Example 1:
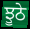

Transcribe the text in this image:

ਝੂਠੇ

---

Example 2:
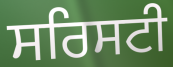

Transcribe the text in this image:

ਸਰਿਸਟੀ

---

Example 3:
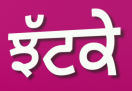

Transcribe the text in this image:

ਝੱਟਕੇ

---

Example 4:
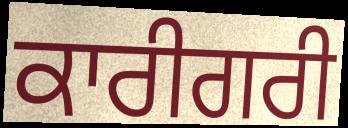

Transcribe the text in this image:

ਕਾਰੀਗਰੀ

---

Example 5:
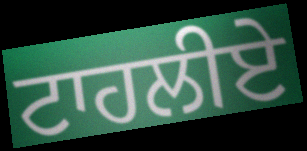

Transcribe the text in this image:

ਟਾਹਲੀਏ